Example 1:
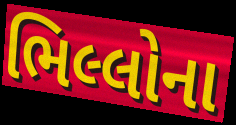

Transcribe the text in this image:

ભિલ્લોના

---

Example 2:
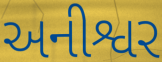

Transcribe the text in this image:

અનીશ્વર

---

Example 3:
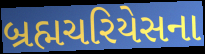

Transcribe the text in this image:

બ્રહ્મચરિયેસના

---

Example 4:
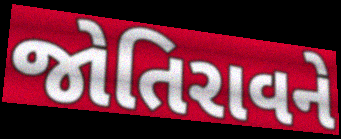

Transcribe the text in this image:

જોતિરાવને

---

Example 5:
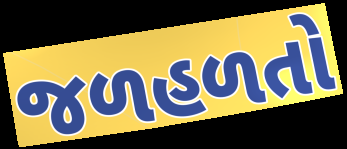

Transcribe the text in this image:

જળહળતો